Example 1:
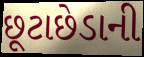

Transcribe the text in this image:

છૂટાછેડાની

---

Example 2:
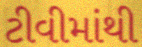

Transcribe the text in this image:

ટીવીમાંથી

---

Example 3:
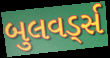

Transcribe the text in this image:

બુલવર્ડ્સ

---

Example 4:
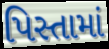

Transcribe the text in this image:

પિસ્તામાં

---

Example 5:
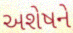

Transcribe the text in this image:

અશેષને